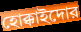
হোক্কাইদোর